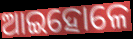
ଆଇହୋଳେ